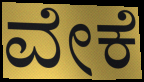
ವೇಕೆ